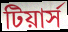
টিয়ার্স